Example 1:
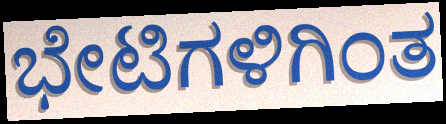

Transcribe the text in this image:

ಭೇಟಿಗಳಿಗಿಂತ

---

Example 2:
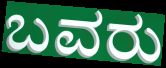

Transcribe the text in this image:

ಬವರು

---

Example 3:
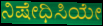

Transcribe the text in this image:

ನಿಷೇಧಿಸಿಯೇ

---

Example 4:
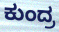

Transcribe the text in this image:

ಕುಂದ್ರ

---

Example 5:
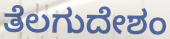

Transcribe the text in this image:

ತೆಲಗುದೇಶಂ